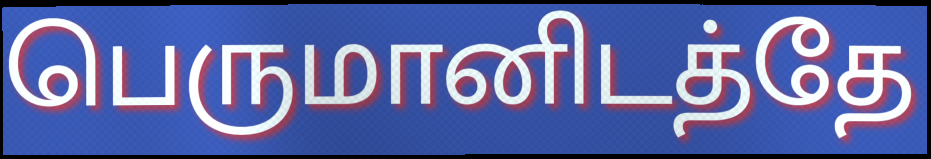
பெருமானிடத்தே